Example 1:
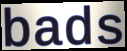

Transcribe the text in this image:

bads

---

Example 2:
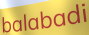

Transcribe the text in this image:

balabadi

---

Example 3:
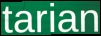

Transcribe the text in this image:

tarian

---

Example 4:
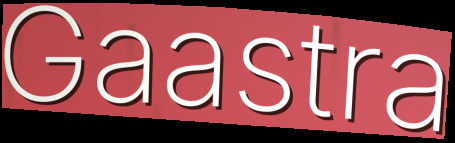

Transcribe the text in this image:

Gaastra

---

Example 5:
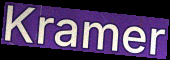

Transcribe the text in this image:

Kramer